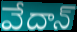
వేదాన్